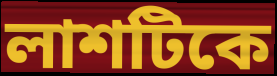
লাশটিকে